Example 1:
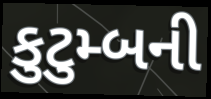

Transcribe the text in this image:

કુટુમ્બની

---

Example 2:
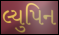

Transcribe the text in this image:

લ્યુપિન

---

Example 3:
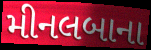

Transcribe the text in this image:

મીનલબાના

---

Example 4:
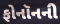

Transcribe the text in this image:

ફોનૉનની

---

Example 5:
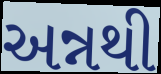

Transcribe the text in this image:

અન્નથી